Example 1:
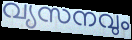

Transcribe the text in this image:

വ്യസനവും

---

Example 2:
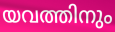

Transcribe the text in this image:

യവത്തിനും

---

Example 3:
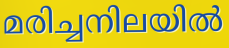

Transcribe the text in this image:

മരിച്ചനിലയിൽ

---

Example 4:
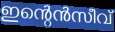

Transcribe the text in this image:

ഇന്റെൻസീവ്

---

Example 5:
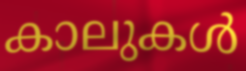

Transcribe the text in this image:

കാലുകൾ